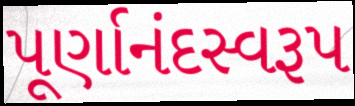
પૂર્ણાનંદસ્વરૂપ